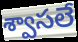
శ్వాసలే